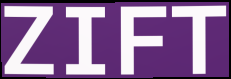
ZIFT